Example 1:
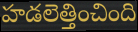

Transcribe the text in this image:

హడలెత్తించింది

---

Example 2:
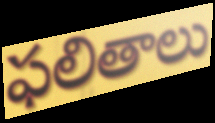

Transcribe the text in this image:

ఫలితాలు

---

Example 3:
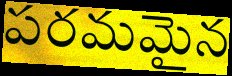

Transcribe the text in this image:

పరమమైన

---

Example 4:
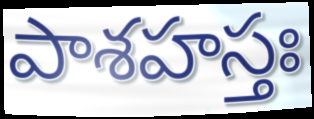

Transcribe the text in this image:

పాశహస్తః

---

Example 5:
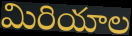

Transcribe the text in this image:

మిరియాల